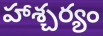
హాశ్చర్యం